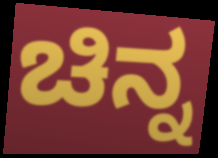
ಚಿನ್ನ